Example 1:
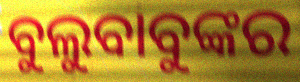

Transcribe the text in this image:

ବୁଲୁବାବୁଙ୍କର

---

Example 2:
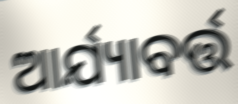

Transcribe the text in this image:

ଆର୍ଯ୍ୟାବର୍ତ୍ତ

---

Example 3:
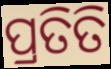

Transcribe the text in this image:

ପ୍ରତିତି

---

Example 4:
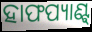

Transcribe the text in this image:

ହାଫପ୍ୟାଣ୍ଟ୍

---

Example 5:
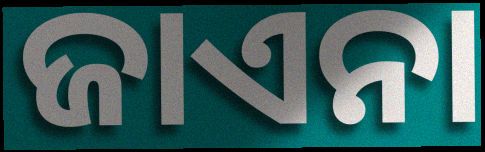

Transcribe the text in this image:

ଜାଏନା